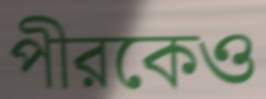
পীরকেও